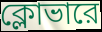
ক্লোভারে